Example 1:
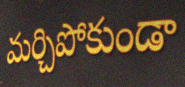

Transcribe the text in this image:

మర్చిపోకుండా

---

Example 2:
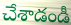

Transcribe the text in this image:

చేశాడండీ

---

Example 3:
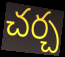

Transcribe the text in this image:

చర్చ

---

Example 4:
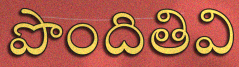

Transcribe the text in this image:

పొందితివి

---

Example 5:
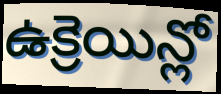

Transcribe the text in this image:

ఉక్రెయిన్లో